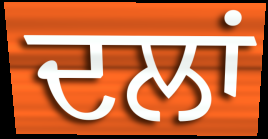
ਦਲਾਂ